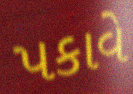
પકાવે